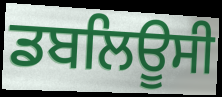
ਡਬਲਿਊਸੀ